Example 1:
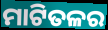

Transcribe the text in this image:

ମାଟିତଳର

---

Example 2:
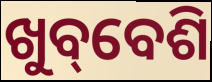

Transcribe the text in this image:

ଖୁବ୍‌ବେଶି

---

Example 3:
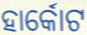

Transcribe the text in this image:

ହାର୍କୋଟ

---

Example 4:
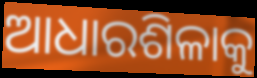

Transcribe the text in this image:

ଆଧାରଶିଳାକୁ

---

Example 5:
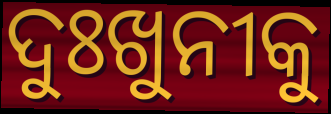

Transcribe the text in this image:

ଦୁଃଖୁନୀକୁ